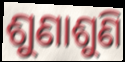
ଶୁଣାଶୁଣି